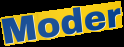
Moder